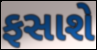
ફસાશે